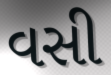
વસી